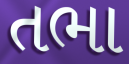
તભા